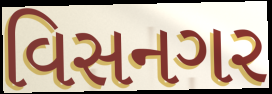
વિસનગર